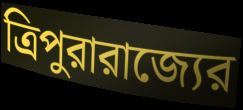
ত্রিপুরারাজ্যের